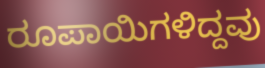
ರೂಪಾಯಿಗಳಿದ್ದವು